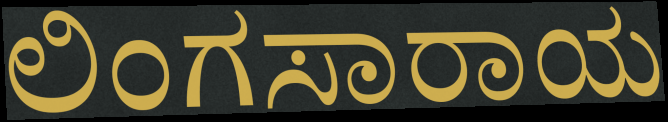
ಲಿಂಗಸಾರಾಯ